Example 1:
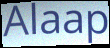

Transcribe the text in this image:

Alaap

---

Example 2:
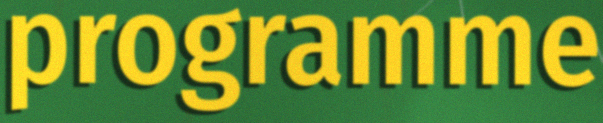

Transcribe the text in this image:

programme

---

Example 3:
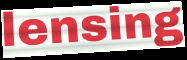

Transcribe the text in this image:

lensing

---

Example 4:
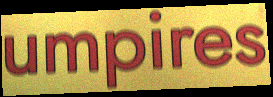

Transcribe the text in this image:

umpires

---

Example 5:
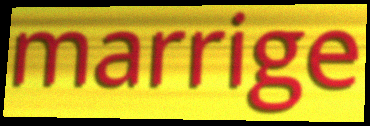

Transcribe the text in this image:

marrige